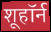
शूहॉर्न